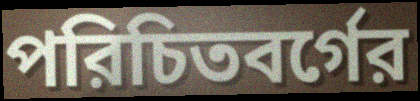
পরিচিতবর্গের